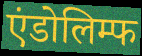
एंडोलिम्फ